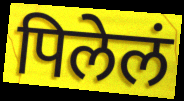
पिलेलं